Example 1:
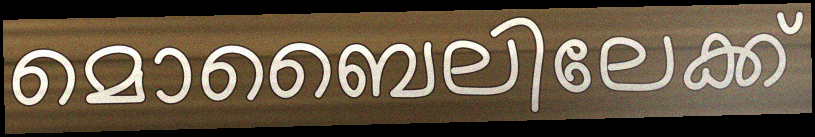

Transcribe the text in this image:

മൊബൈലിലേക്ക്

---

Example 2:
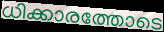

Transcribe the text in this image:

ധിക്കാരത്തോടെ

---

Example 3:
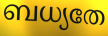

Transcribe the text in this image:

ബധ്യതേ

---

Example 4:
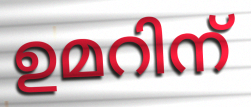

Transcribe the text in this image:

ഉമറിന്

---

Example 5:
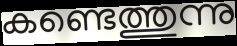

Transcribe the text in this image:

കണ്ടെത്തുന്നു